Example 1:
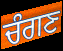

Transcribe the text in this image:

ਚੰਗਣ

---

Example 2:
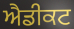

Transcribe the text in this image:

ਐਡੀਕਟ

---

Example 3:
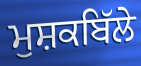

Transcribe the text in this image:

ਮੁਸ਼ਕਬਿੱਲੇ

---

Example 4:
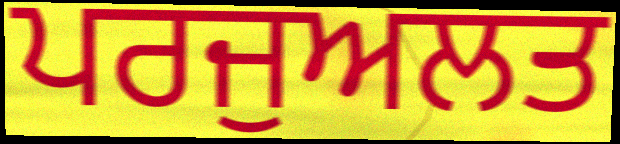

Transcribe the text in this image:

ਪਰਜੁਅਲਤ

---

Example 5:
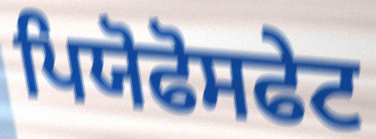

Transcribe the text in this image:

ਪਿਯੋਫੋਸਫੇਟ